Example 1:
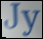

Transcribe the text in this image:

Jy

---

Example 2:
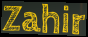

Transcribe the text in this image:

Zahir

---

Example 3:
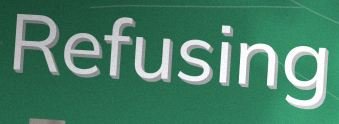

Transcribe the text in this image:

Refusing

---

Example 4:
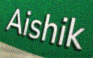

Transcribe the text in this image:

Aishik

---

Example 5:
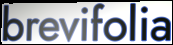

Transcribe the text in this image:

brevifolia